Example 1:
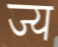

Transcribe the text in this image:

ज्य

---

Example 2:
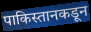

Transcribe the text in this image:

पाकिस्तानकडून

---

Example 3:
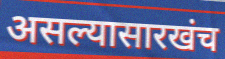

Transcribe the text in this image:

असल्यासारखंच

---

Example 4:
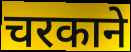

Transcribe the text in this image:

चरकाने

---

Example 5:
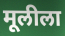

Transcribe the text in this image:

मूलीला